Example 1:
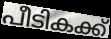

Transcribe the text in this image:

പീടികക്ക്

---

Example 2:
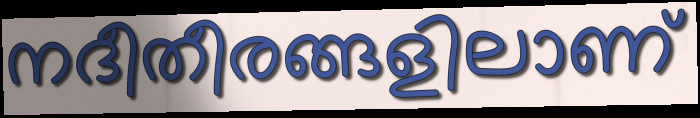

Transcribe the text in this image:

നദീതീരങ്ങളിലാണ്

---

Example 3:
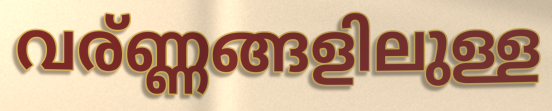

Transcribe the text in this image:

വര്ണ്ണങ്ങളിലുള്ള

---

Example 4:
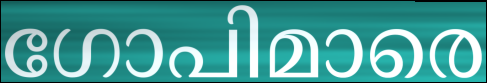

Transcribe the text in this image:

ഗോപിമാരെ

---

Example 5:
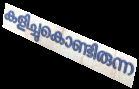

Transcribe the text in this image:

കളിച്ചുകൊണ്ടിരുന്ന